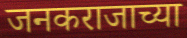
जनकराजाच्या